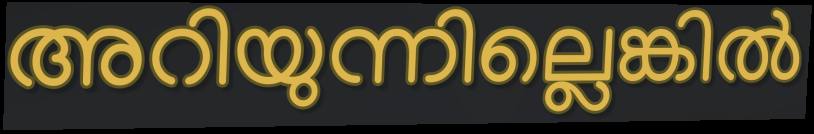
അറിയുന്നില്ലെങ്കിൽ